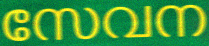
സേവന